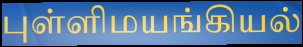
புள்ளிமயங்கியல்